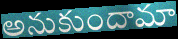
అనుకుందామా